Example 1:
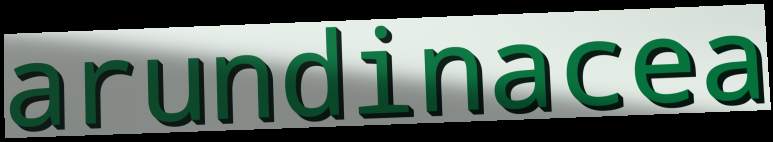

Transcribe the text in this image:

arundinacea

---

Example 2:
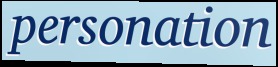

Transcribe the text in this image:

personation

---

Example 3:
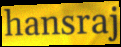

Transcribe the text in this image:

hansraj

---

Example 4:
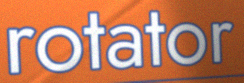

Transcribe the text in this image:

rotator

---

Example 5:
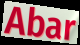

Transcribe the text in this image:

Abar